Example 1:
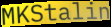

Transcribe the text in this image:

MKStalin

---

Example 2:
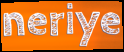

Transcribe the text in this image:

neriye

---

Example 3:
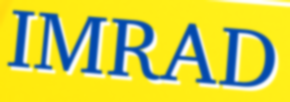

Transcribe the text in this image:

IMRAD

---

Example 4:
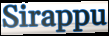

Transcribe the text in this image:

Sirappu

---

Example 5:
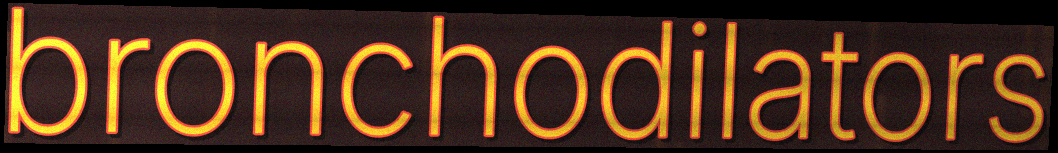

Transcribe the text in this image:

bronchodilators